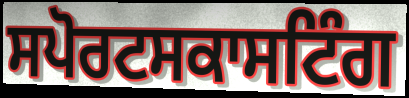
ਸਪੋਰਟਸਕਾਸਟਿੰਗ